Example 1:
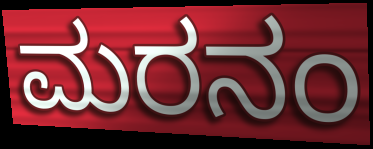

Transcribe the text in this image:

ಮರನಂ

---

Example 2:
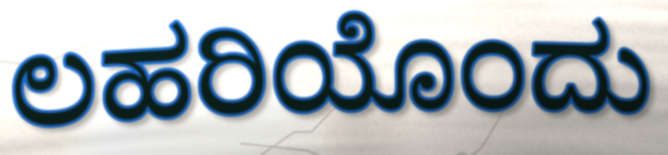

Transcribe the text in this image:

ಲಹರಿಯೊಂದು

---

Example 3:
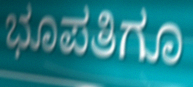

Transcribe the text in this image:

ಭೂಪತಿಗೂ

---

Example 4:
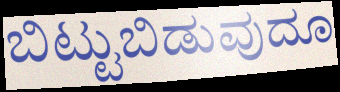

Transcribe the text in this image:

ಬಿಟ್ಟುಬಿಡುವುದೂ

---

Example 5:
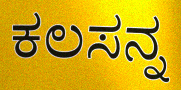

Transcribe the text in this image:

ಕಲಸನ್ನ